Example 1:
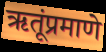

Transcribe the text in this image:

ऋतूंप्रमाणे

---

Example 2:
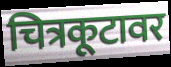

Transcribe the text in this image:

चित्रकूटावर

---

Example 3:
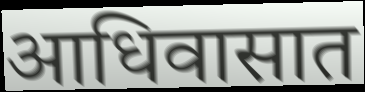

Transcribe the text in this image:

आधिवासात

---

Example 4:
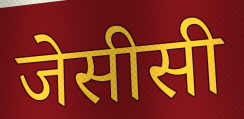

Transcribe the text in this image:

जेसीसी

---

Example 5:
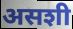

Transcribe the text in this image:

असशी